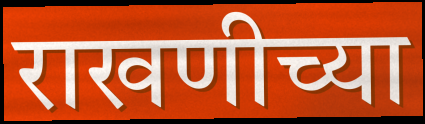
राखणीच्या